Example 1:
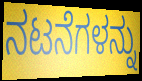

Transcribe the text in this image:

ನಟನೆಗಳನ್ನು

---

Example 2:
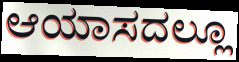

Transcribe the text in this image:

ಆಯಾಸದಲ್ಲೂ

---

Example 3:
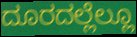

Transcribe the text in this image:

ದೂರದಲ್ಲೆಲ್ಲೂ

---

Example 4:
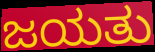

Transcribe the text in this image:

ಜಯತು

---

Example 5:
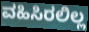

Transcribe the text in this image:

ವಹಿಸಿರಲಿಲ್ಲ